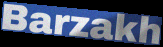
Barzakh